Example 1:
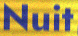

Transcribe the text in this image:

Nuit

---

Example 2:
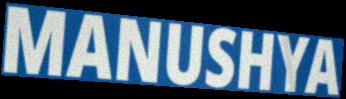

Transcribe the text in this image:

MANUSHYA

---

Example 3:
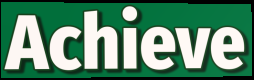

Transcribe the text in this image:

Achieve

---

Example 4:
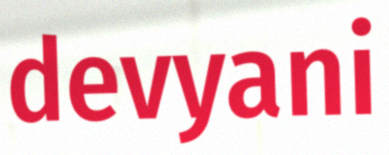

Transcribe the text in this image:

devyani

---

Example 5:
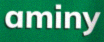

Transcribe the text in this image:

aminy